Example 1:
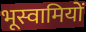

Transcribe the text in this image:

भूस्वामियों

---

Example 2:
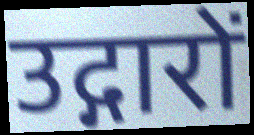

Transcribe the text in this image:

उद्गारों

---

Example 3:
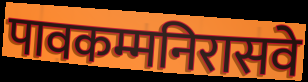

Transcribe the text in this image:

पावकम्मनिरासवे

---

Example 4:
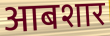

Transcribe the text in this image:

आबशार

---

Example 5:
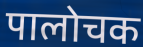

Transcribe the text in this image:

पालोचक